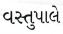
વસ્તુપાલે